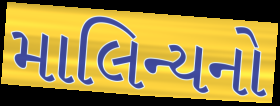
માલિન્યનો